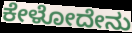
ಕೇಳೋದೇನು